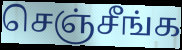
செஞ்சீங்க